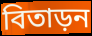
বিতাড়ন